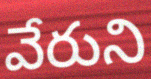
వేరుని